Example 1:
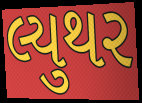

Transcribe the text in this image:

લ્યુથર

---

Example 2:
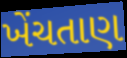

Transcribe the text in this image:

ખેંચતાણ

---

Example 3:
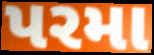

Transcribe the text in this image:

પરમા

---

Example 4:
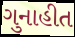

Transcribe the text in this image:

ગુનાહીત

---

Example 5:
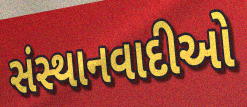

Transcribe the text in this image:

સંસ્થાનવાદીઓ